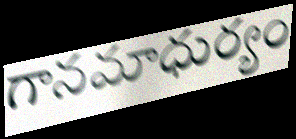
గానమాధుర్యం